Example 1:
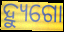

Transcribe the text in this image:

ହ୍ୟୁଗୋ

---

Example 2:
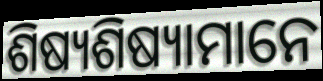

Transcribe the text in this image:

ଶିଷ୍ୟଶିଷ୍ୟାମାନେ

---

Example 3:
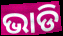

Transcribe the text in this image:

ଭାଡି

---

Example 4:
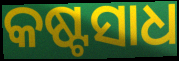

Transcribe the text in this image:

କଷ୍ଟସାଧ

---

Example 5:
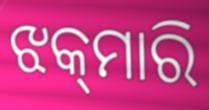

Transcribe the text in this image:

ଝକ୍‌ମାରି